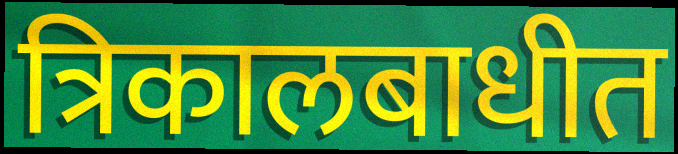
त्रिकालबाधीत